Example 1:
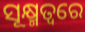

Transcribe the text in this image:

ସୂକ୍ଷ୍ମତ୍ୱରେ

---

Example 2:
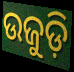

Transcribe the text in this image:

ଉଜୁଡ଼ି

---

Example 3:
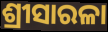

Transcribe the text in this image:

ଶ୍ରୀସାରଳା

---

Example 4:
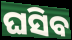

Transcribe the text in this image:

ଘସିବ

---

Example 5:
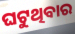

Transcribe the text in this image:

ଘଟୁଥିବାର